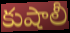
కుషాలీ